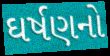
ઘર્ષણનો